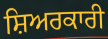
ਸ਼ਿਅਰਕਾਰੀ